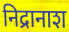
निद्रानाश